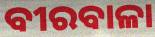
ବୀରବାଳା